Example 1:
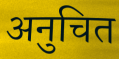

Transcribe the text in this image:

अनुचित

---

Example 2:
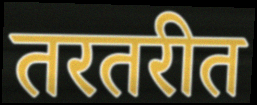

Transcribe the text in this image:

तरतरीत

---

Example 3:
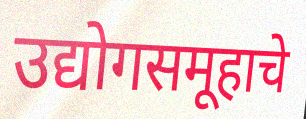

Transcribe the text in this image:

उद्योगसमूहाचे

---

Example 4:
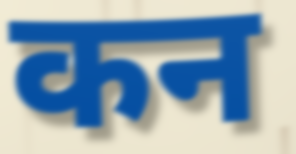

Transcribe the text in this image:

कन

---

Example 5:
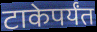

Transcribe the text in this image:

टाकेपर्यंत